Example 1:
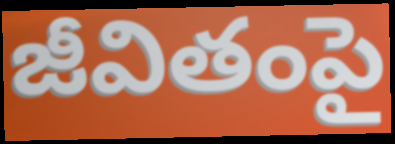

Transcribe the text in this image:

జీవితంపై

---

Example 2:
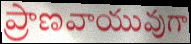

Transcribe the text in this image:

ప్రాణవాయువుగా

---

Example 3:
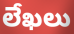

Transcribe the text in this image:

లేఖలు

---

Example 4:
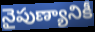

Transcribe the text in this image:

నైపుణ్యానికీ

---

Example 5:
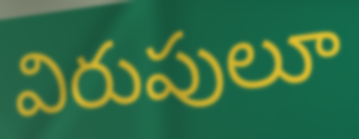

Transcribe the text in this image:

విరుపులూ